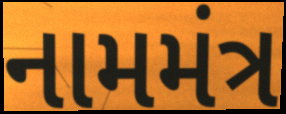
નામમંત્ર